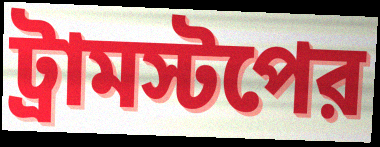
ট্রামস্টপের